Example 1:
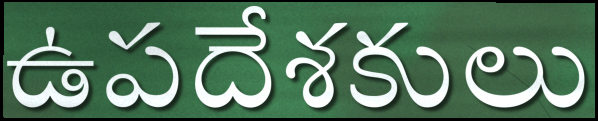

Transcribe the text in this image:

ఉపదేశకులు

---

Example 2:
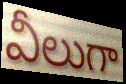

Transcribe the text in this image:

వీలుగా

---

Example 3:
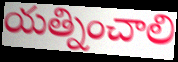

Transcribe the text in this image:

యత్నించాలి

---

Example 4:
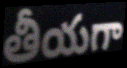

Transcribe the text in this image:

తీయగా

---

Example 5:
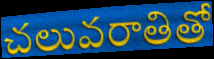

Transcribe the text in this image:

చలువరాతితో